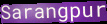
Sarangpur